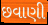
છવાણી